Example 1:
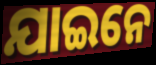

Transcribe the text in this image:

ଯାଇନେ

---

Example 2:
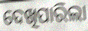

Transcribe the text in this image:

ଦେଖିପାରିଲା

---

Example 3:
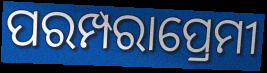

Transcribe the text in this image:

ପରମ୍ପରାପ୍ରେମୀ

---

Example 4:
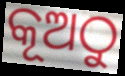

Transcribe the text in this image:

କୂଅଠୁ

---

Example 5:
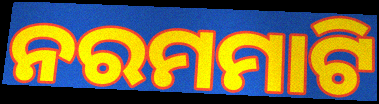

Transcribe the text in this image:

ନରମମାଟି